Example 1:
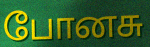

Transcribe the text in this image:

போனசு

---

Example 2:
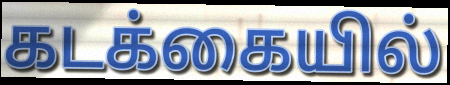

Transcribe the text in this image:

கடக்கையில்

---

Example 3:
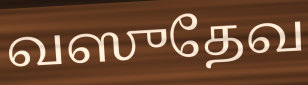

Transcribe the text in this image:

வஸுதேவ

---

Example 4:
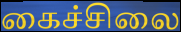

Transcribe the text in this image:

கைச்சிலை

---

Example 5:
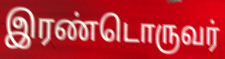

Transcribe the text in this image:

இரண்டொருவர்